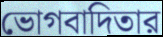
ভোগবাদিতার